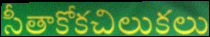
సీతాకోకచిలుకలు